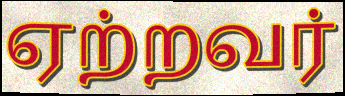
ஏற்றவர்